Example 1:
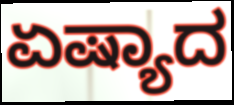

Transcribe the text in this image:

ಏಷ್ಯಾದ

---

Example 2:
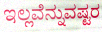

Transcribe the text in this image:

ಇಲ್ಲವೆನ್ನುವಷ್ಟರ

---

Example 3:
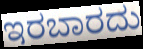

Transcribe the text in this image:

ಇರಬಾರದು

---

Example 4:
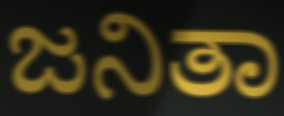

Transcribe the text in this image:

ಜನಿತಾ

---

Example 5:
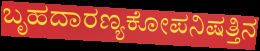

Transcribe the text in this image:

ಬೃಹದಾರಣ್ಯಕೋಪನಿಷತ್ತಿನ